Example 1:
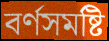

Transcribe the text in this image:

বৰ্ণসমষ্টি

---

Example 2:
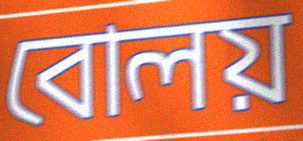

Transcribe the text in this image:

বোলয়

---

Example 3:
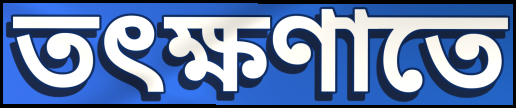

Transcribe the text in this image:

তৎক্ষণাতে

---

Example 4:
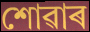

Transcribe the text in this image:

শোৱাৰ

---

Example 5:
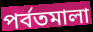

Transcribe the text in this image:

পৰ্বতমালা